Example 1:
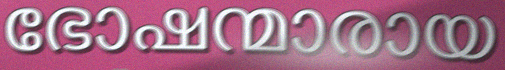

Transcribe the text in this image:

ഭോഷന്മാരായ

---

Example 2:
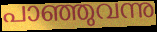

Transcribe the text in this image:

പാഞ്ഞുവന്നു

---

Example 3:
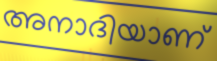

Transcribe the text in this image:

അനാദിയാണ്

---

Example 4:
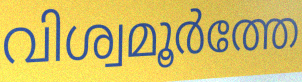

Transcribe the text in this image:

വിശ്വമൂർത്തേ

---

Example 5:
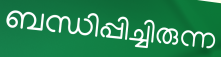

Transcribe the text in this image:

ബന്ധിപ്പിച്ചിരുന്ന